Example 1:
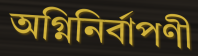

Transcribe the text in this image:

অগ্নিনির্বাপণী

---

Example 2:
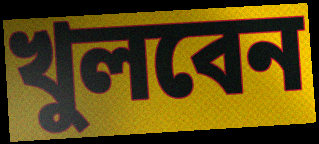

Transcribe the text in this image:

খুলবেন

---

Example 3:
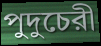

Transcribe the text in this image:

পুদুচেরী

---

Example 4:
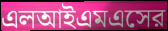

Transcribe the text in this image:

এলআইএমএসের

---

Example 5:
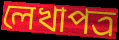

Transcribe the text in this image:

লেখাপত্র